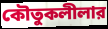
কৌতুকলীলার